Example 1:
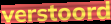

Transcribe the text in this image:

verstoord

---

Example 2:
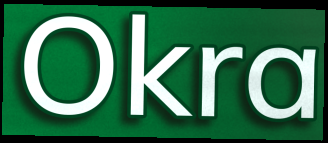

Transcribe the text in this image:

Okra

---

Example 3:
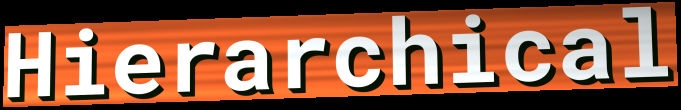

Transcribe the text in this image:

Hierarchical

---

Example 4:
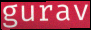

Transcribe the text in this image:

gurav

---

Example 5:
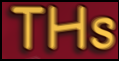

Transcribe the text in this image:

THs